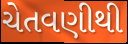
ચેતવણીથી